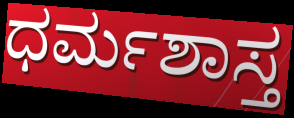
ಧರ್ಮಶಾಸ್ತ